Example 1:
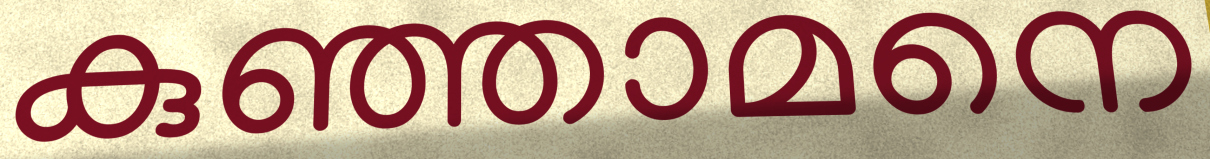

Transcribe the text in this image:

കുഞ്ഞാമനെ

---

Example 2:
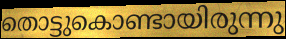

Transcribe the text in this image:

തൊട്ടുകൊണ്ടായിരുന്നു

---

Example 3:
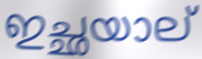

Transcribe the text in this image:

ഇച്ഛയാല്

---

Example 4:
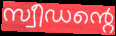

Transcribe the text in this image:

സ്വീഡന്റെ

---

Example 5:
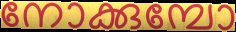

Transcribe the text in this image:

നോക്കുമ്പോ